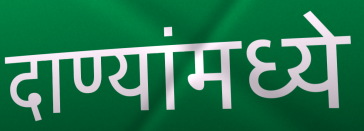
दाण्यांमध्ये